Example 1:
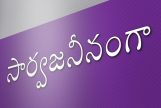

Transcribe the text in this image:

సార్వజనీనంగా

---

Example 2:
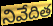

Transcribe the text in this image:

నివేదిత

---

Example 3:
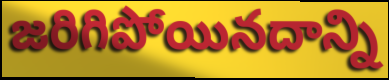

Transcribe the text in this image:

జరిగిపోయినదాన్ని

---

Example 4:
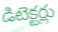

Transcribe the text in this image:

డిటెక్టర్లు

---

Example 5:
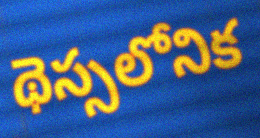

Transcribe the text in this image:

థెస్సలోనిక